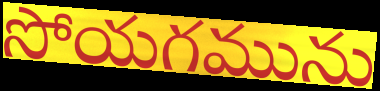
సోయగమును